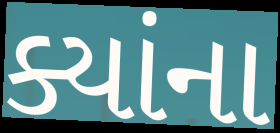
ક્યાંના